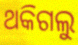
ଥକିଗଲୁ